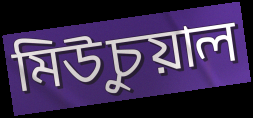
মিউচুয়াল